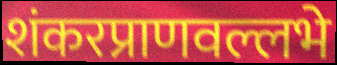
शंकरप्राणवल्लभे